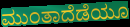
ಮುಂತಾದೆಡೆಯೂ